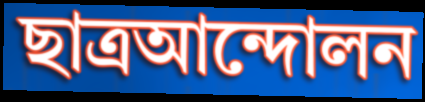
ছাত্রআন্দোলন